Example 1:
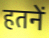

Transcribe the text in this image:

हतनें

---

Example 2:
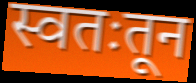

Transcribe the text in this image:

स्वतःतून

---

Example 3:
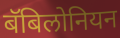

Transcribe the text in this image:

बॅबिलोनियन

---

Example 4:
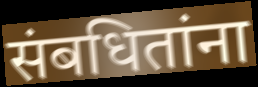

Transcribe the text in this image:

संबधितांना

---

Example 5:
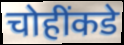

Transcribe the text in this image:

चोहींकडे